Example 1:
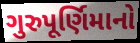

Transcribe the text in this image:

ગુરુપૂર્ણિમાનો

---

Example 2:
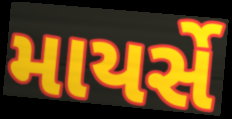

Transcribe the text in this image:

માયર્સે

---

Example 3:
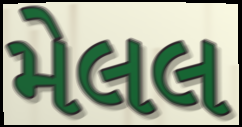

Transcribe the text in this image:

મેલલ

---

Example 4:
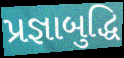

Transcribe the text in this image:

પ્રજ્ઞાબુદ્ધિ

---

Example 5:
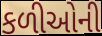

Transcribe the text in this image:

કળીઓની